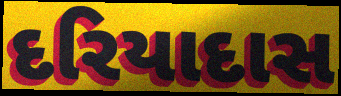
દરિયાદાસ